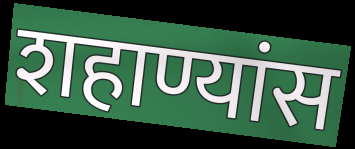
शहाण्यांस